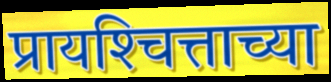
प्रायश्‍चित्ताच्या